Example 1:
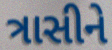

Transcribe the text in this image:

ત્રાસીને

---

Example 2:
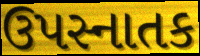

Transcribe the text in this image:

ઉપસ્નાતક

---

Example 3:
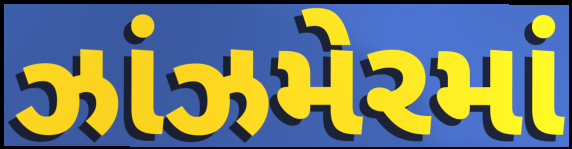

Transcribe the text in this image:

ઝાંઝમેરમાં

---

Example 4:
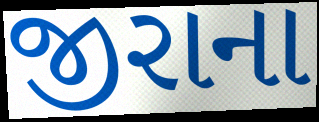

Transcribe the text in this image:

જીરાના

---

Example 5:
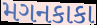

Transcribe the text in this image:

મગનકાકા